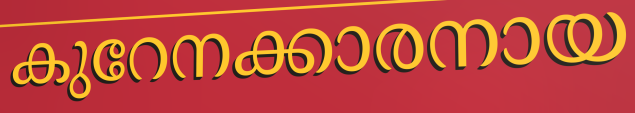
കുറേനക്കാരനായ